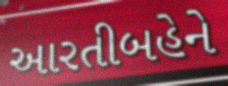
આરતીબહેને